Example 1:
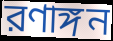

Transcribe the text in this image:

রণাঙ্গন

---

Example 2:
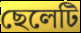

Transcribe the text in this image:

ছেলেটি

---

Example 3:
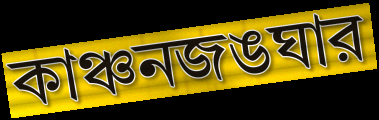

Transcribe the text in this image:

কাঞ্চনজঙঘার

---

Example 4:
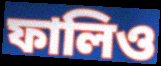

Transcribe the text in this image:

ফালিও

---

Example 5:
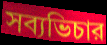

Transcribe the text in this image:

সব্যভিচার